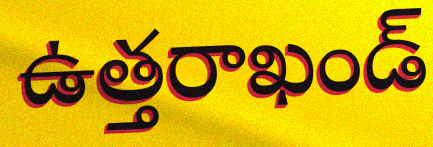
ఉత్తరాఖండ్